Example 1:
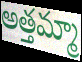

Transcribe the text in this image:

అత్తమ్మా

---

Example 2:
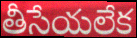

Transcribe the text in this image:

తీసేయలేక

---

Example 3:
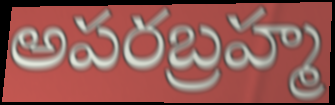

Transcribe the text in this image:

అపరబ్రహ్మ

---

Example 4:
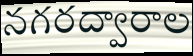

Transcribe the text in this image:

నగరద్వారాల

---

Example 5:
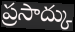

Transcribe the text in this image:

ప్రసాద్కు